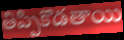
తిప్పికొడతాయి